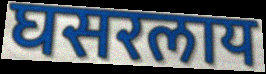
घसरलाय